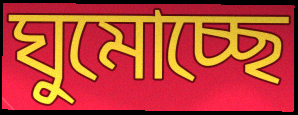
ঘুমোচ্ছে